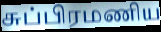
சுப்பிரமணிய